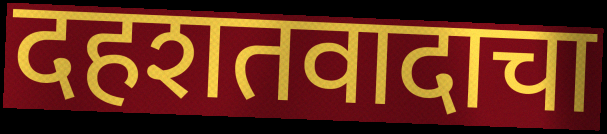
दहशतवादाचा